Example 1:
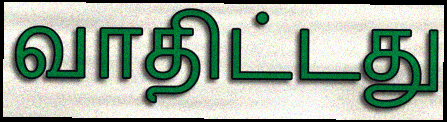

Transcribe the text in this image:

வாதிட்டது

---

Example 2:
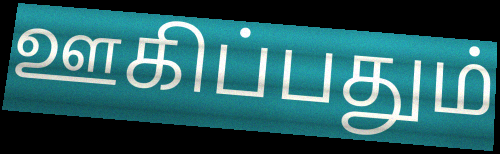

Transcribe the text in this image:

ஊகிப்பதும்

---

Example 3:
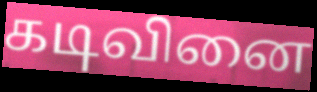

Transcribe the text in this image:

கடிவினை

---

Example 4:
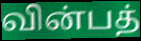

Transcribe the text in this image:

வின்பத்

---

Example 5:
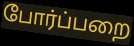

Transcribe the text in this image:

போர்ப்பறை